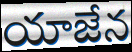
యాజేన